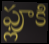
ఫ్లూకి